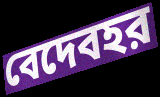
বেদেবহর